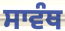
ਸਾਵੰਥ